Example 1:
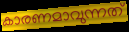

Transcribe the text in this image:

കാരണമാവുന്നത്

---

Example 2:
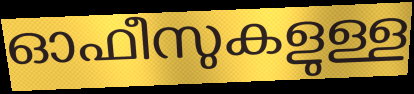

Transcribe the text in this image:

ഓഫീസുകളുള്ള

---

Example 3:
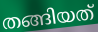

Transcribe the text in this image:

തങ്ങിയത്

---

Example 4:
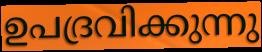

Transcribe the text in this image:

ഉപദ്രവിക്കുന്നു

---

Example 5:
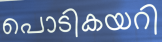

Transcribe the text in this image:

പൊടികയറി